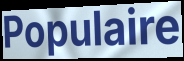
Populaire